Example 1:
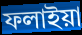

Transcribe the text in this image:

ফলাইয়া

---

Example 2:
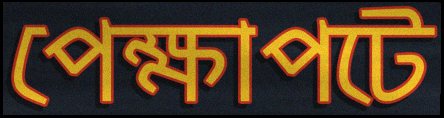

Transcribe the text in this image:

পেক্ষাপটে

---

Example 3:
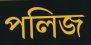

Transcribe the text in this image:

পলিজ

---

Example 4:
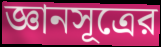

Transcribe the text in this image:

জ্ঞানসূত্রের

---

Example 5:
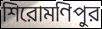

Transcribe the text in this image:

শিরোমণিপুর